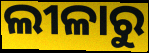
ଲୀଳାରୁ